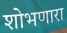
शोभणारा